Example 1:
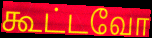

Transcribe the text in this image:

கூட்டவோ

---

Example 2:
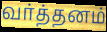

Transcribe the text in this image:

வர்த்தனம்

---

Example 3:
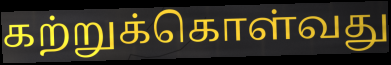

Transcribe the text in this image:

கற்றுக்கொள்வது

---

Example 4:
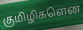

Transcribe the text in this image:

குமிழிகளென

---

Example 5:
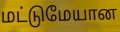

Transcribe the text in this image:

மட்டுமேயான